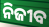
ନିଜୀବ